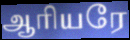
ஆரியரே